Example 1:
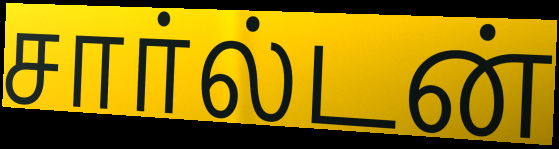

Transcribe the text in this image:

சார்ல்டன்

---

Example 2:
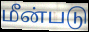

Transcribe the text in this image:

மீன்படு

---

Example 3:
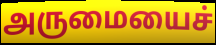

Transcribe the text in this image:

அருமையைச்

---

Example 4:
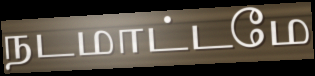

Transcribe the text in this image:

நடமாட்டமே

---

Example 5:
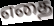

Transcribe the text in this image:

எதை